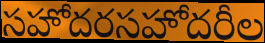
సహోదరసహోదరీల